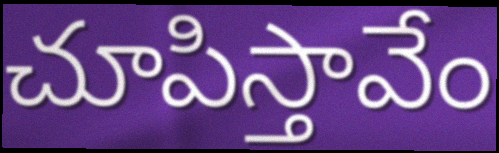
చూపిస్తావేం